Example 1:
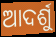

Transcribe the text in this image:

ଆଦର୍ଶୁ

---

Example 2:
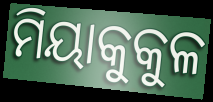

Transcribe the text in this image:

ମିୟାକୁକୁଳ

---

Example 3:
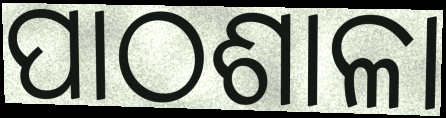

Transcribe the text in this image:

ପାଠଶାଳା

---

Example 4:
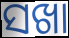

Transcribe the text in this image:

ସଖା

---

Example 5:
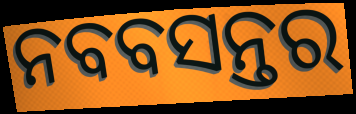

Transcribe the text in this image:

ନବବସନ୍ତର